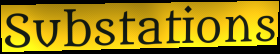
Substations